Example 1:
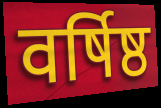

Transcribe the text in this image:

वर्षिष्ठ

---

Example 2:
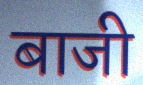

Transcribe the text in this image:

बाजी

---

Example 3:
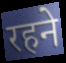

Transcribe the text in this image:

रहने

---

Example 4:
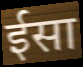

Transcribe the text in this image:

ईसा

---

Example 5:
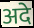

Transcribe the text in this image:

अदे